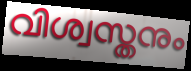
വിശ്വസ്തനും